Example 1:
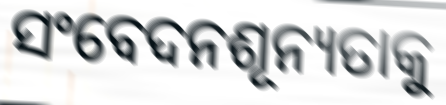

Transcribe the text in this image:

ସଂବେଦନଶୂନ୍ୟତାକୁ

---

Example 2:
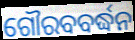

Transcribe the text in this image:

ଗୌରବବର୍ଦ୍ଧନ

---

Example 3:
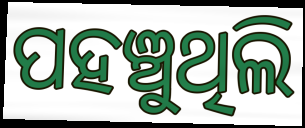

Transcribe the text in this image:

ପହଞ୍ଚୁଥିଲି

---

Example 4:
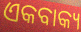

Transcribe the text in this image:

ଏକବାକ୍ୟ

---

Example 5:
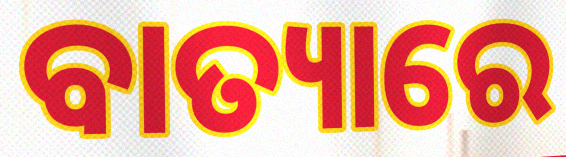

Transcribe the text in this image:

ବାତ୍ୟାରେ